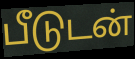
பீடுடன்